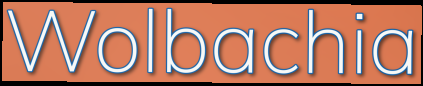
Wolbachia